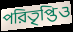
পরিতৃপ্তিও